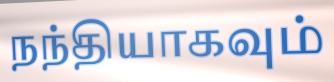
நந்தியாகவும்